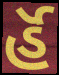
ર્હૅ